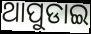
ଥାପୁଡାଇ